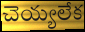
చెయ్యలేక